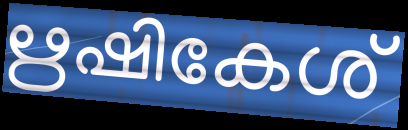
ഋഷികേശ്